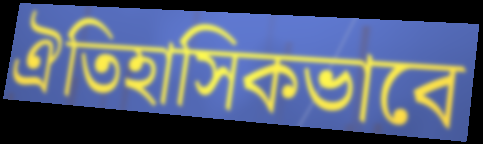
ঐতিহাসিকভাবে